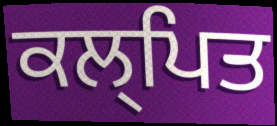
ਕਲ੍ਪਿਤ